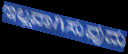
ಇಲ್ಲವಾಗಿಸುವುದು